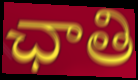
ఛాతి